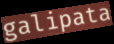
galipata